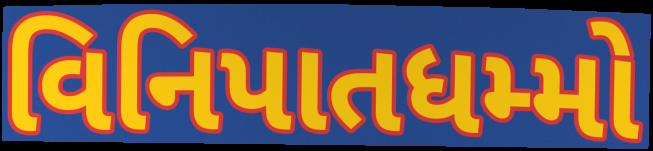
વિનિપાતધમ્મો